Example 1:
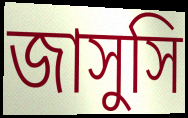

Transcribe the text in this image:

জাসুসি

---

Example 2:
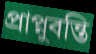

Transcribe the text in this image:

প্রাপ্নুবন্তি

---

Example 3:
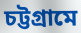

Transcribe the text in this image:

চট্টগ্রামে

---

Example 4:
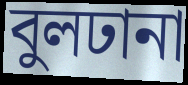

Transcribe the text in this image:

বুলঢানা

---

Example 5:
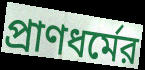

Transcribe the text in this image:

প্রাণধর্মের